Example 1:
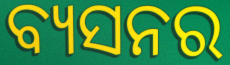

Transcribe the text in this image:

ବ୍ୟସନର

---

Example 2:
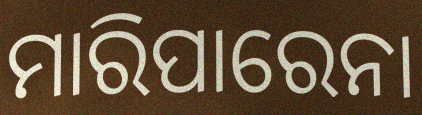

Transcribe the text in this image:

ମାରିପାରେନା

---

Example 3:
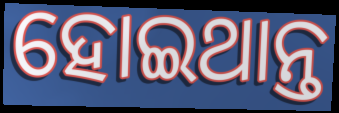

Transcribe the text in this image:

ହୋଇଥାନ୍ତ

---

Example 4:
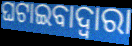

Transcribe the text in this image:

ଘଟାଇବାଦ୍ୱାରା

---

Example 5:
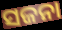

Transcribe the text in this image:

ସଜନା